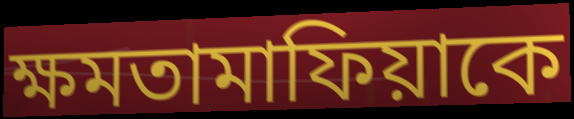
ক্ষমতামাফিয়াকে